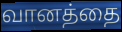
வானத்தை